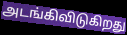
அடங்கிவிடுகிறது